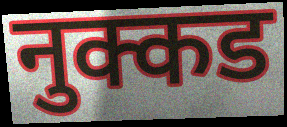
नुक्कड